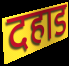
दहाड